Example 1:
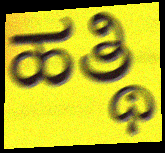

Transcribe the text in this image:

ಹತ್ಥಿ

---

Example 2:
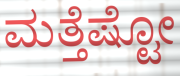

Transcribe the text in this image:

ಮತ್ತೆಷ್ಟೋ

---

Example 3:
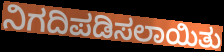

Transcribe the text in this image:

ನಿಗದಿಪಡಿಸಲಾಯಿತು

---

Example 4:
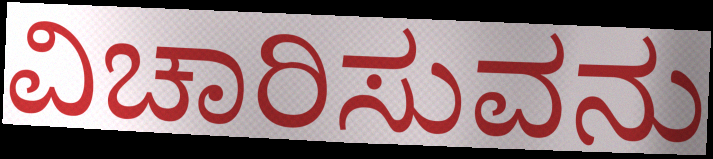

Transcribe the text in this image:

ವಿಚಾರಿಸುವನು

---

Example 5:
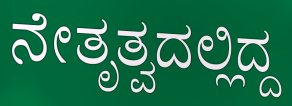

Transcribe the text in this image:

ನೇತೃತ್ವದಲ್ಲಿದ್ದ